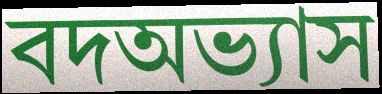
বদঅভ্যাস